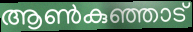
ആൺകുഞ്ഞാട്